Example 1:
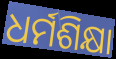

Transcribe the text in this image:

ଧର୍ମଶିକ୍ଷା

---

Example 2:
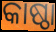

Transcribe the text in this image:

କାଷ୍ଠା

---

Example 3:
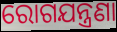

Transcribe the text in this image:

ରୋଗଯନ୍ତ୍ରଣା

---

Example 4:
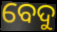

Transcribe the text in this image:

ବେଦୁ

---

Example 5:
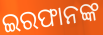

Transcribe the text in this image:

ଇରଫାନଙ୍କ